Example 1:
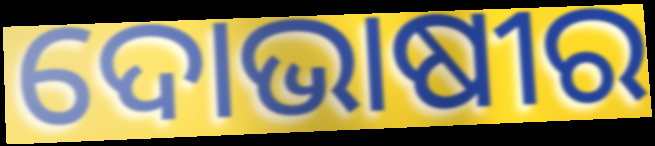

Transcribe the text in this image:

ଦୋଭାଷୀର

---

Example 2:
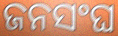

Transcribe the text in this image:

ଜନସଂଘ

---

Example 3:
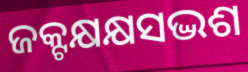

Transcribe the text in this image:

ଜକ୍ଟକ୍ଷକ୍ଷସଦ୍ଭଶ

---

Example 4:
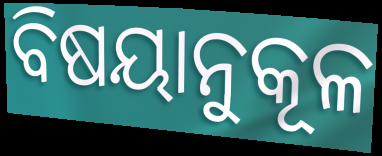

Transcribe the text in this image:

ବିଷୟାନୁକୂଳ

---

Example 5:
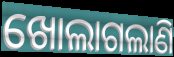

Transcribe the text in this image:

ଖୋଲାଗଲାଣି